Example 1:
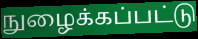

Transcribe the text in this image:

நுழைக்கப்பட்டு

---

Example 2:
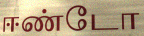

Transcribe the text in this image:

ஈண்டோ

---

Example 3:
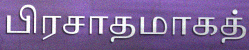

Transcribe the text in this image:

பிரசாதமாகத்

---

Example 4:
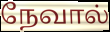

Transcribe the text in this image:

நேவால்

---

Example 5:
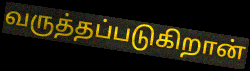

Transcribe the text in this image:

வருத்தப்படுகிறான்